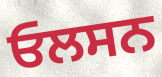
ਓਲਸਨ